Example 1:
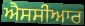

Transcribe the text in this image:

ਐਸਸੀਆਰ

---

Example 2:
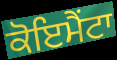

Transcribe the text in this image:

ਕੋਇਮੈਂਟਾ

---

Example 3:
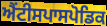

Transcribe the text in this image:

ਐਂਟੀਸਪਾਸਪੋਡਿਕ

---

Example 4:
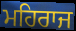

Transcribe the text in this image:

ਮਹਿਰਾਜ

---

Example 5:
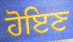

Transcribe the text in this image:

ਹੋਇਣ